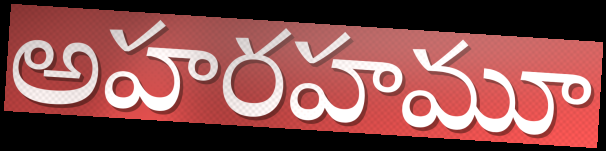
అహరహమూ